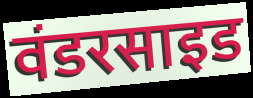
वंडरसाइड